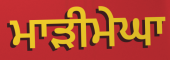
ਮਾੜੀਮੇਘਾ